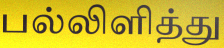
பல்லிளித்து